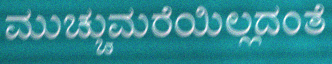
ಮುಚ್ಚುಮರೆಯಿಲ್ಲದಂತೆ